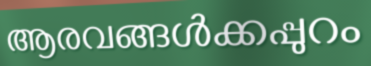
ആരവങ്ങൾക്കപ്പുറം